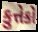
કુત્તેકો